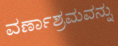
ವರ್ಣಾಶ್ರಮವನ್ನು